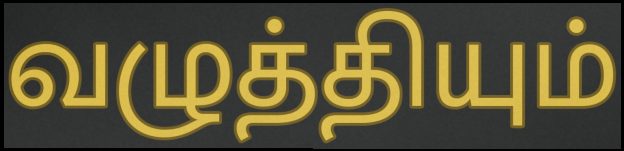
வழுத்தியும்